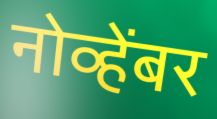
नोव्हेंबर